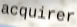
acquirer